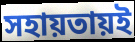
সহায়তায়ই